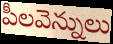
పీలవెన్నులు